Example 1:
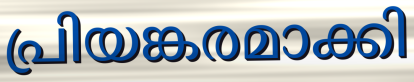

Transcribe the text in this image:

പ്രിയങ്കരമാക്കി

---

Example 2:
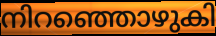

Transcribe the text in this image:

നിറഞ്ഞൊഴുകി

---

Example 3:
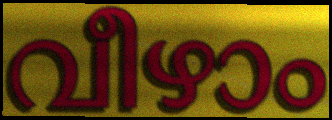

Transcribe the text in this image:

വീഴാം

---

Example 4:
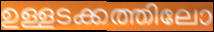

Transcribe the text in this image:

ഉള്ളടക്കത്തിലോ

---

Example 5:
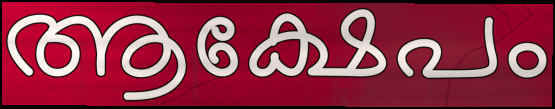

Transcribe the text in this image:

ആക്ഷേപം